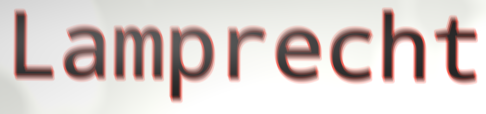
Lamprecht